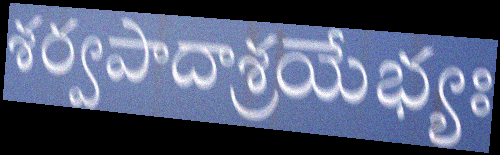
శర్వపాదాశ్రయేభ్యః